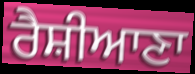
ਰੈਸ਼ੀਆਣਾ